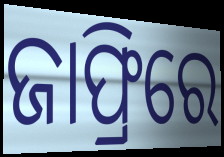
ଜାଫ୍ରିରେ